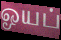
ஓயப்